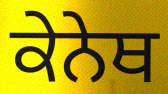
ਕੇਨੇਥ